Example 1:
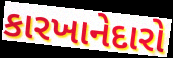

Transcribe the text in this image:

કારખાનેદારો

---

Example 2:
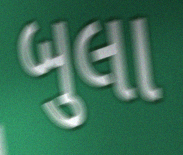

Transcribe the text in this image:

બુલા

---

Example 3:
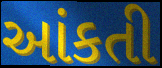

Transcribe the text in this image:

આંકતી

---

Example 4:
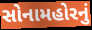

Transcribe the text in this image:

સોનામહોરનું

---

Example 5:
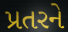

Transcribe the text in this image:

પ્રતરને